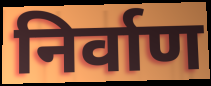
निर्वाण